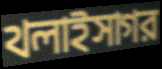
থলাইসাগর